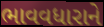
ભાવવધારાને